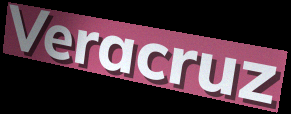
Veracruz